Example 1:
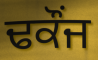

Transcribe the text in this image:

ਢਕੌਂਜ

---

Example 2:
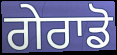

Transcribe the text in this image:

ਗੇਰਾਡੋ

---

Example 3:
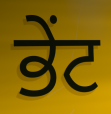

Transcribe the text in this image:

ਭੇਂਟ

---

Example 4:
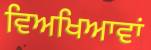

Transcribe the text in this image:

ਵਿਅਖਿਆਵਾਂ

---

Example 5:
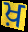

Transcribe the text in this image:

ਖ਼